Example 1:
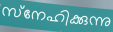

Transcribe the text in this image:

സ്‌നേഹിക്കുന്നു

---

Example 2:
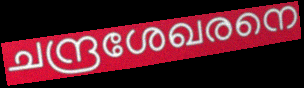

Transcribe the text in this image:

ചന്ദ്രശേഖരനെ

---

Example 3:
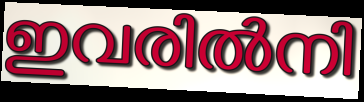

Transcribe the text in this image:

ഇവരിൽനി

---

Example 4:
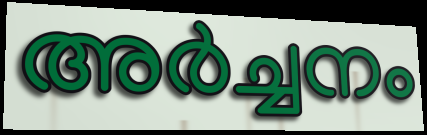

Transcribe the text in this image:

അർച്ചനം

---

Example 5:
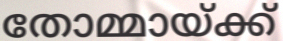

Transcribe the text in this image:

തോമ്മായ്ക്ക്